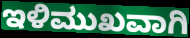
ಇಳಿಮುಖವಾಗಿ